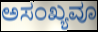
ಅಸಂಖ್ಯವೂ